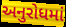
અનુરોધમાં